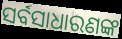
ସର୍ବସାଧାରଣଙ୍କ